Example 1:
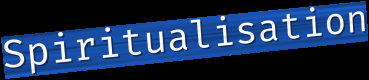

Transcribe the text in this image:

Spiritualisation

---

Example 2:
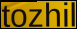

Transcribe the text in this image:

tozhil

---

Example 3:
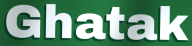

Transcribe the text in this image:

Ghatak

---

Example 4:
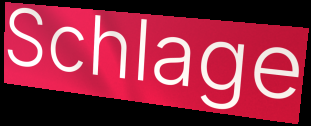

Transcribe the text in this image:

Schlage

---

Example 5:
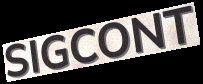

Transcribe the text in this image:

SIGCONT